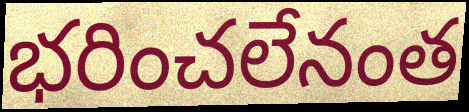
భరించలేనంత